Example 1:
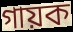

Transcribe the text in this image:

গায়ক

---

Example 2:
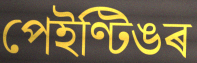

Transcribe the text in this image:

পেইণ্টিঙৰ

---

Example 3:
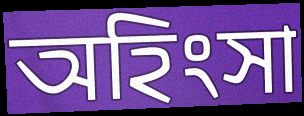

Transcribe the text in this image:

অহিংসা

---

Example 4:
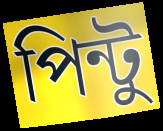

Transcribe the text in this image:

পিন্টু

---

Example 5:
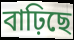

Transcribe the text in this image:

বাঢ়িছে